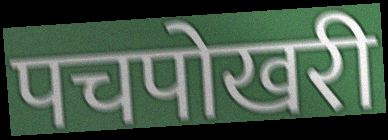
पचपोखरी